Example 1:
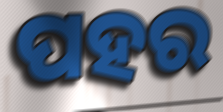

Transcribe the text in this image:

ପହର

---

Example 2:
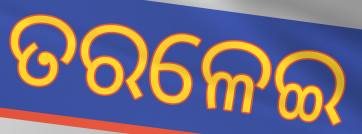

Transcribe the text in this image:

ତରଳେଇ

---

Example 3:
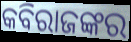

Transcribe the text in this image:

କବିରାଜଙ୍କର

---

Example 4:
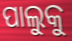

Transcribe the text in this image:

ପାଲୁକୁ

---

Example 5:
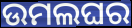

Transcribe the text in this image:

ଉମଲଘର